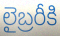
లైబ్రరీకి